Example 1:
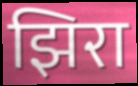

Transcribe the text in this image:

झिरा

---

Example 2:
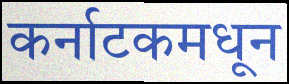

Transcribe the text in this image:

कर्नाटकमधून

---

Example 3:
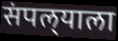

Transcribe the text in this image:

संपल्याला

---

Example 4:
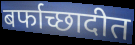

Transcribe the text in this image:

बर्फाच्छादीत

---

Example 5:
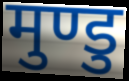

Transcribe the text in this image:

मुण्डु